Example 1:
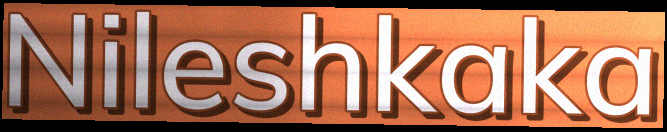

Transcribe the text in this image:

Nileshkaka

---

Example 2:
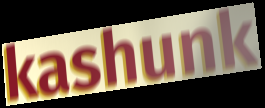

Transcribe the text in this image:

kashunk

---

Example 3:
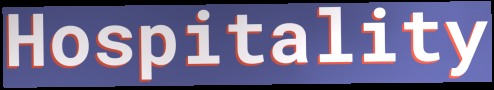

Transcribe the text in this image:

Hospitality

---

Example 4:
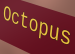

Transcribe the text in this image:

Octopus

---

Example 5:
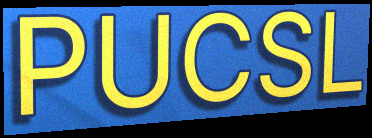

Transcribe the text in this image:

PUCSL